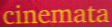
cinemata